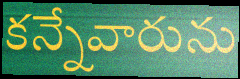
కన్నేవారును